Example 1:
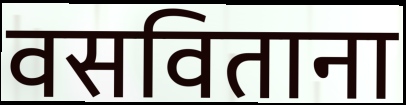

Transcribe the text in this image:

वसविताना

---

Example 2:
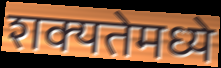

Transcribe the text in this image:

शक्यतेमध्ये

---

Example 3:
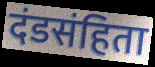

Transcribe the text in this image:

दंडसंहिता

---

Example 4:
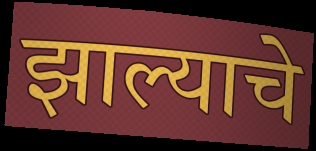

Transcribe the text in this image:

झाल्याचे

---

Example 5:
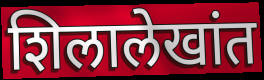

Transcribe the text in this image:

शिलालेखांत